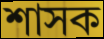
শাসক